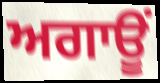
ਅਗਾਊਂ